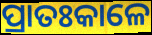
ପ୍ରାତଃକାଳେ